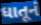
ધાતૂનં